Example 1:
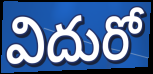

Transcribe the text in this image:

విదురో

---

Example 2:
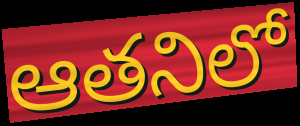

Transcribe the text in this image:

ఆతనిలో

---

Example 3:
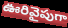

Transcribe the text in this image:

ఊరివైపుగా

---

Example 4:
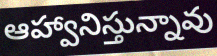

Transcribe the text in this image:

ఆహ్వానిస్తున్నావు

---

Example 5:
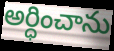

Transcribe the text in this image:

అర్ధించాను